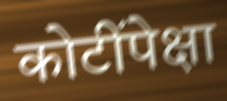
कोटींपेक्षा